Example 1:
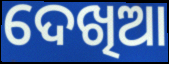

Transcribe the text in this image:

ଦେଖିଆ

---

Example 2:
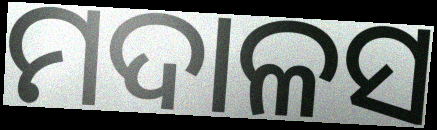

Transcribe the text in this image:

ମଦାଳସ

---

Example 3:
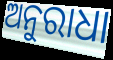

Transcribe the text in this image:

ଅନୁରାଧା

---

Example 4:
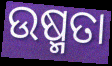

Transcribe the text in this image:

ଉଷ୍ମତା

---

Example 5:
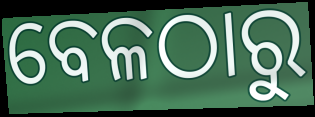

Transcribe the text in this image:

ବେଳଠାରୁ